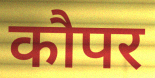
कौपर